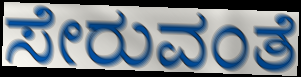
ಸೇರುವಂತೆ